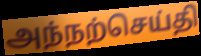
அந்நற்செய்தி